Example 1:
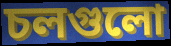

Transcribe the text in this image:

চলগুলো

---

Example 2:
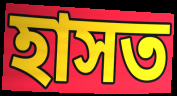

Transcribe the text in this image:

হাসত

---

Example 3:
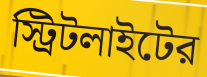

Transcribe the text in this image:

স্ট্রিটলাইটের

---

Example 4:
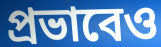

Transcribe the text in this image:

প্রভাবেও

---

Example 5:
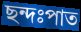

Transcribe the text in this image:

ছন্দঃপাত